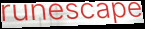
runescape